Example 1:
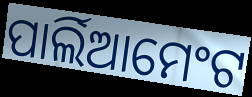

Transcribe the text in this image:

ପାର୍ଲିଆମେଂଟ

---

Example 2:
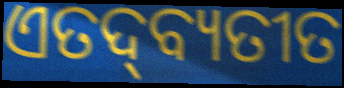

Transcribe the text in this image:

ଏତଦ୍‍ବ୍ୟତୀତ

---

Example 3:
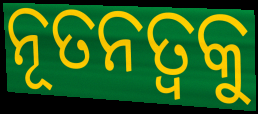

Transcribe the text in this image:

ନୂତନତ୍ବକୁ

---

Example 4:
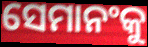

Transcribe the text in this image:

ସେମାନଂକୁ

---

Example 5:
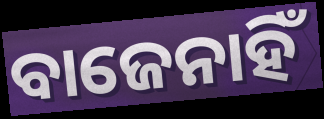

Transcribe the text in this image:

ବାଜେନାହିଁ